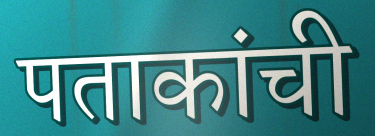
पताकांची